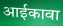
आईकावा